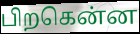
பிறகென்ன